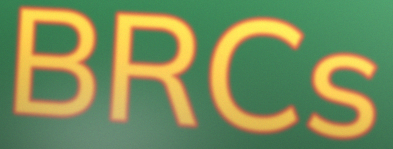
BRCs